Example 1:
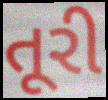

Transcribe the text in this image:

તૂરી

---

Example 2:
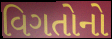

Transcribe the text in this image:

વિગતોનો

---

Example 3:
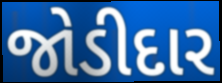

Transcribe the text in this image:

જોડીદાર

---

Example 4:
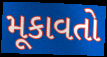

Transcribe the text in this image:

મૂકાવતો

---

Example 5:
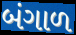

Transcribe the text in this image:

બંગાળ